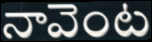
నావెంట